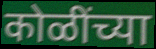
कोळींच्या